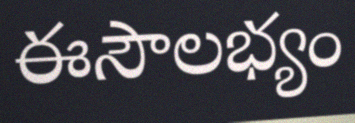
ఈసౌలభ్యం